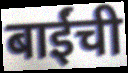
बाईंची